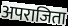
अपराजिता